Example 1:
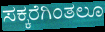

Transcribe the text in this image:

ಸಕ್ಕರೆಗಿಂತಲೂ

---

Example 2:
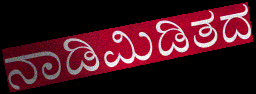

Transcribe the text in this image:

ನಾಡಿಮಿಡಿತದ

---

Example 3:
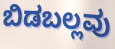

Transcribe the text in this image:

ಬಿಡಬಲ್ಲವು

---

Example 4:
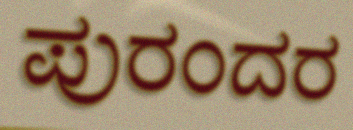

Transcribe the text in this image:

ಪುರಂದರ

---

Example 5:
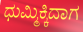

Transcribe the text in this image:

ಧುಮ್ಮಿಕ್ಕಿದಾಗ